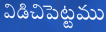
విడిచిపెట్టము